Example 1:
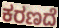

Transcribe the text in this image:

ಕರಣದೆ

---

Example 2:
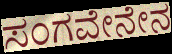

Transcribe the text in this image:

ಸಂಗವೇನೇನ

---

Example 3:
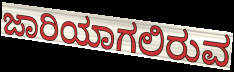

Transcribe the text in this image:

ಜಾರಿಯಾಗಲಿರುವ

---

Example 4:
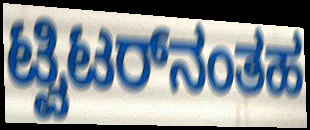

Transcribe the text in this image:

ಟ್ವಿಟರ್‌ನಂತಹ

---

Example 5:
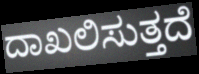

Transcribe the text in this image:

ದಾಖಲಿಸುತ್ತದೆ